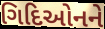
ગિદિઓનને